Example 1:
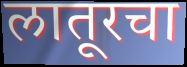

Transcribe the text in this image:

लातूरचा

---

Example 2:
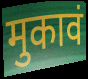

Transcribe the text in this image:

मुकावं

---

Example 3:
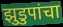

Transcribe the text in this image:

झुडुपांचा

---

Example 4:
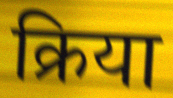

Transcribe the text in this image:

क्रिया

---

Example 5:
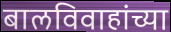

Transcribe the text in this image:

बालविवाहांच्या